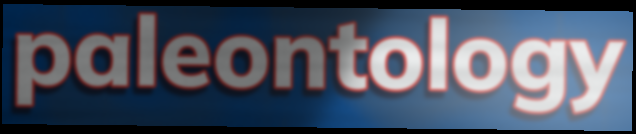
paleontology